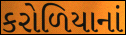
કરોળિયાનાં